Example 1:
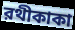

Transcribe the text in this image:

রথীকাকা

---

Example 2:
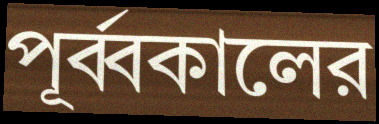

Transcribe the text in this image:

পূর্ব্বকালের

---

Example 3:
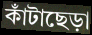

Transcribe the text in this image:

কাঁটাছেড়া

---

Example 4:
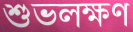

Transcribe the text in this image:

শুভলক্ষণ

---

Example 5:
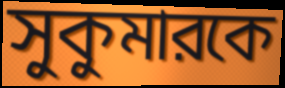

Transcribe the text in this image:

সুকুমারকে